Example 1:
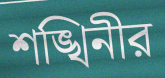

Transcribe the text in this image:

শঙ্খিনীর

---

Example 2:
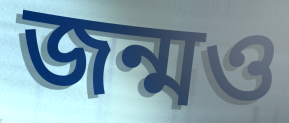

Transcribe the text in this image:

জন্মও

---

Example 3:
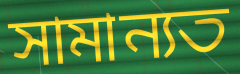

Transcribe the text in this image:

সামান্যত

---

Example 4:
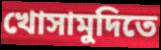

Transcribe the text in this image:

খোসামুদিতে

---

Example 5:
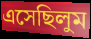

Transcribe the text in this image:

এসেছিলুম